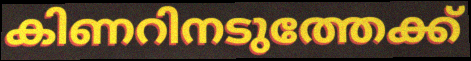
കിണറിനടുത്തേക്ക്